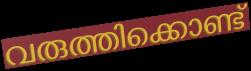
വരുത്തിക്കൊണ്ട്